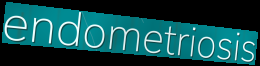
endometriosis